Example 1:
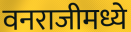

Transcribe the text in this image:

वनराजीमध्ये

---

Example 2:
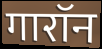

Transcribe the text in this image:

गारॉन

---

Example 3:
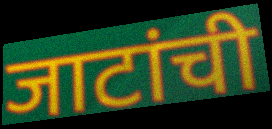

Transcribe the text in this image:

जाटांची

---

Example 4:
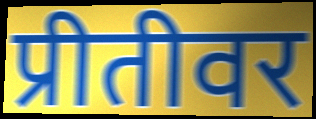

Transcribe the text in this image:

प्रीतीवर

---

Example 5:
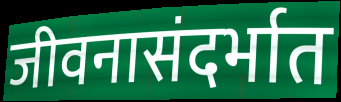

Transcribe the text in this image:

जीवनासंदर्भात